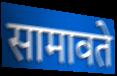
सामावते